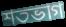
শতভাগ